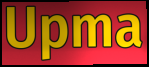
Upma